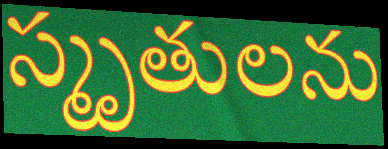
స్మృతులను